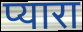
प्यारा